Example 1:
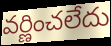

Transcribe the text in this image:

వర్ణించలేదు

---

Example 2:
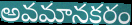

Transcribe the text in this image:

అవమానకరం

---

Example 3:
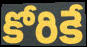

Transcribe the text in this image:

కోరికే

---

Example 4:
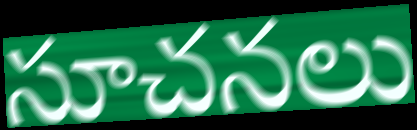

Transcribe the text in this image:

సూచనలు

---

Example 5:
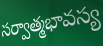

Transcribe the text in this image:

సర్వాత్మభావస్య